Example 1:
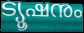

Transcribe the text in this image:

ട്യൂഷനും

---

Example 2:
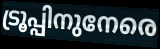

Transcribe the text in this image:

ട്രൂപ്പിനുനേരെ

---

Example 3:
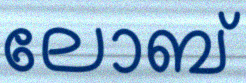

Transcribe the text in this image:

ലോബ്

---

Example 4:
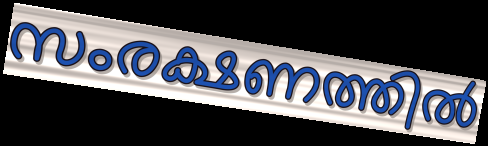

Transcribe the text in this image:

സംരക്ഷണത്തിൽ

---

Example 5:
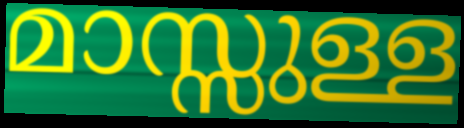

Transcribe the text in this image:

മാസ്സുള്ള